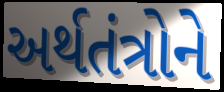
અર્થતંત્રોને